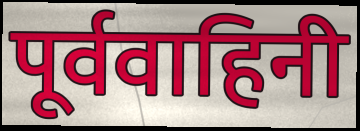
पूर्ववाहिनी